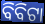
ବିବିଟା